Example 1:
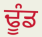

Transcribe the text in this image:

ਢੂੰਡ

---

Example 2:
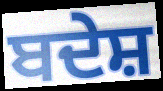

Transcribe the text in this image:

ਬਦੇਸ਼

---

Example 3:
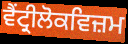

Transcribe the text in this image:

ਵੈਂਟ੍ਰੀਲੋਕਵਿਜ਼ਮ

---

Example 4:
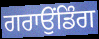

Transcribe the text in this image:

ਗਰਾਉਂਡਿੰਗ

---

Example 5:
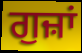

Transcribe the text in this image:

ਗੁਜ਼ਾਂ